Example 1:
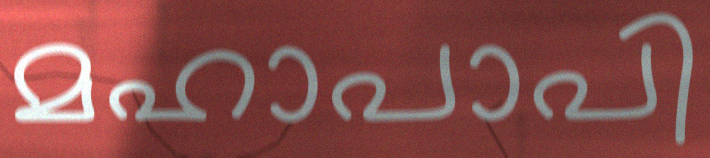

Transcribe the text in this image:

മഹാപാപി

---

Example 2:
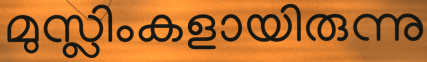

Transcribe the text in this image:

മുസ്ലിംകളായിരുന്നു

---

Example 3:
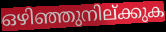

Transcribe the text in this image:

ഒഴിഞ്ഞുനില്ക്കുക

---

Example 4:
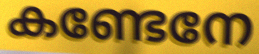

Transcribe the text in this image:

കണ്ടേനേ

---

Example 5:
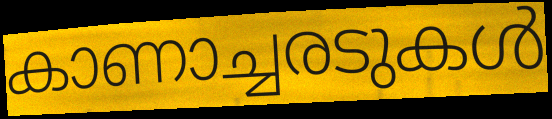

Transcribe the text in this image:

കാണാച്ചരടുകൾ